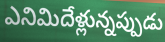
ఎనిమిదేళ్లున్నప్పుడు